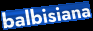
balbisiana